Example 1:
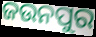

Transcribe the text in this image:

ଜଉନପୁର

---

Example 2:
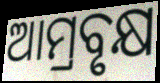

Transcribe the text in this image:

ଆମ୍ରବୃକ୍ଷ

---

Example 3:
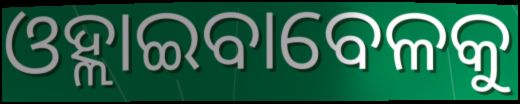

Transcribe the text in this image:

ଓହ୍ଲାଇବାବେଳକୁ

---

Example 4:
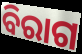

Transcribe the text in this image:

ବିରାଗ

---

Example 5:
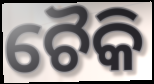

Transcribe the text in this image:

ଚୈକି